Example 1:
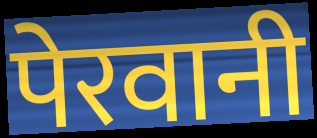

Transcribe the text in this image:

पेरवानी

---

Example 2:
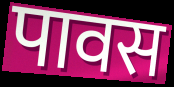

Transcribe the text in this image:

पावस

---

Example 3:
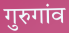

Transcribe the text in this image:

गुरुगांव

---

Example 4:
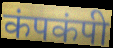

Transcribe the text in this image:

कंपकंपी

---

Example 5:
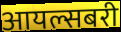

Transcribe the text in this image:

आयल्सबरी